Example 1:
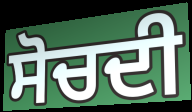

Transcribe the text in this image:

ਸੋਚਦੀ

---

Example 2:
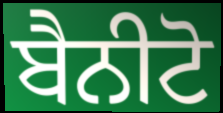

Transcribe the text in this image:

ਬੈਨੀਟੋ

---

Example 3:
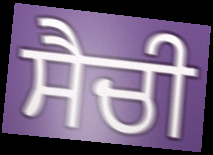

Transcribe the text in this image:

ਸੈਚੀ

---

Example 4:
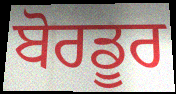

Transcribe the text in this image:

ਬੋਰਡੂਰ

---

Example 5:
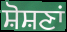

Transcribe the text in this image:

ਸ਼ੋਸ਼ਣਾਂ